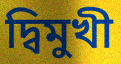
দ্বিমুখী